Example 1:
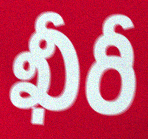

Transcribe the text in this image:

ఖీరీ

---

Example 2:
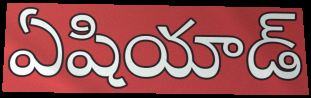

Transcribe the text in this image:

ఏషియాడ్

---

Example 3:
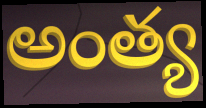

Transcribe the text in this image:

అంత్య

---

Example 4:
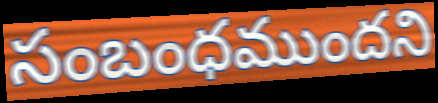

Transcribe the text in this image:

సంబంధముందని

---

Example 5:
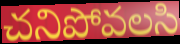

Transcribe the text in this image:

చనిపోవలసి